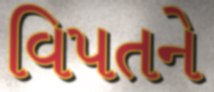
વિપતને